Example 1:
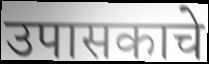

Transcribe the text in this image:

उपासकाचे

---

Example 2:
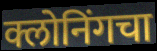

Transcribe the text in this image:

क्लोनिंगचा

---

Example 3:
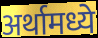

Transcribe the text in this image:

अर्थामध्ये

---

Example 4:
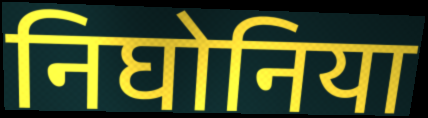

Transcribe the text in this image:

निघोनिया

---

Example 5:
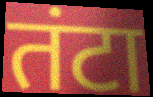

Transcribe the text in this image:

तंटा